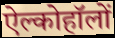
ऐल्कोहॉलों